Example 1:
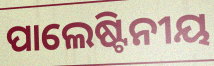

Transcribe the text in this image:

ପାଲେଷ୍ଟିନୀୟ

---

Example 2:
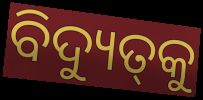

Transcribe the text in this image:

ବିଦ୍ୟୁତ୍‌କୁ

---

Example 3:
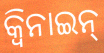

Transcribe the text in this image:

କ୍ୱିନାଇନ୍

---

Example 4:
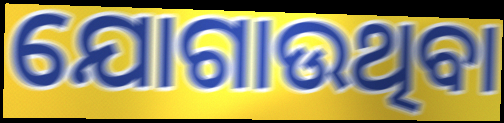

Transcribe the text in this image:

ଯୋଗାଉଥିବା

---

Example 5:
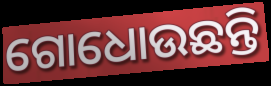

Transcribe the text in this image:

ଗୋଧୋଉଛନ୍ତି